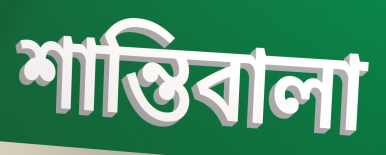
শান্তিবালা